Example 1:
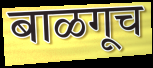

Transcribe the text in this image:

बाळगूच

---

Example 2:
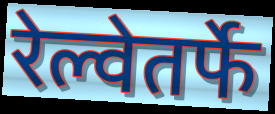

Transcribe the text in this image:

रेल्वेतर्फे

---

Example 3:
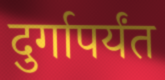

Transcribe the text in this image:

दुर्गापर्यंत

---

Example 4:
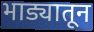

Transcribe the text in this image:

भाड्यातून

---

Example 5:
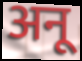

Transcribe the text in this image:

अनू